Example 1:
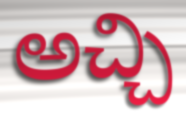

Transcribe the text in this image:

అచ్చి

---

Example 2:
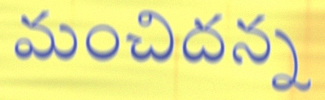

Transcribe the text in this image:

మంచిదన్న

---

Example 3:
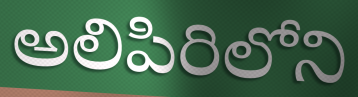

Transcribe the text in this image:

అలిపిరిలోని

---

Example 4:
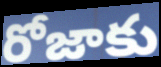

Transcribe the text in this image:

రోజాకు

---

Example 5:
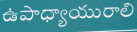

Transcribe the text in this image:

ఉపాధ్యాయురాలి